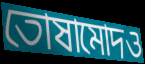
তোষামোদও